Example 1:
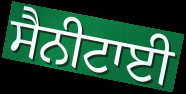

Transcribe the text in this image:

ਸੈਨੀਟਾਈ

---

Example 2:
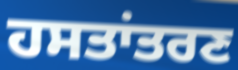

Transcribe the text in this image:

ਹਸਤਾਂਤਰਣ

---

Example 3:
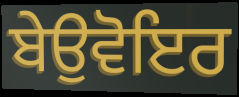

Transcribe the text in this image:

ਬੇਉਵੋਇਰ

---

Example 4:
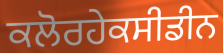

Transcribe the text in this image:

ਕਲੋਰਹੇਕਸੀਡੀਨ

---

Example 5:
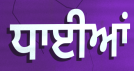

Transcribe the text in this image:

ਧਾਈਆਂ